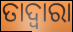
ତାଦ୍ଵାରା